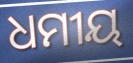
ଧମୀୟ